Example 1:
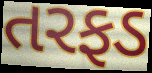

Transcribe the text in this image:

તરફડ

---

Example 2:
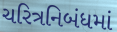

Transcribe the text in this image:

ચરિત્રનિબંધમાં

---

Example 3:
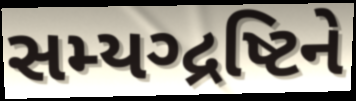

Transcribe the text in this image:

સમ્યગ્દ્રષ્ટિને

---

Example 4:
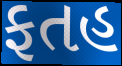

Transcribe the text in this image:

ફતહ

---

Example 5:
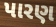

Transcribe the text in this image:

પારણ